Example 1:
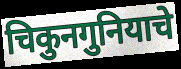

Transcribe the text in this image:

चिकुनगुनियाचे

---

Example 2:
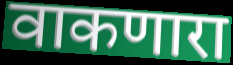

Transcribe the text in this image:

वाकणारा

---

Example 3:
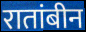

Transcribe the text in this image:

रातांबीन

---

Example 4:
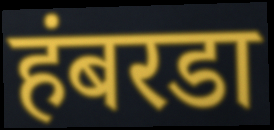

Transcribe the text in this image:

हंबरडा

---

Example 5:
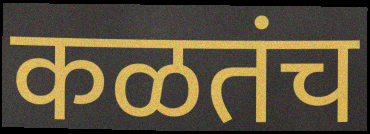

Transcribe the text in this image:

कळतंच